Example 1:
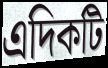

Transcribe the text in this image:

এদিকটি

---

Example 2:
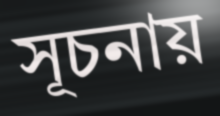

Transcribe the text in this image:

সূচনায়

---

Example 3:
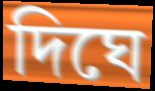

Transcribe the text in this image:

দিঘে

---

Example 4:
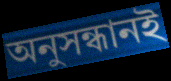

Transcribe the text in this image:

অনুসন্ধানই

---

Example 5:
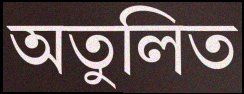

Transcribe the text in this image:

অতুলিত